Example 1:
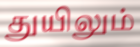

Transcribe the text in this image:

துயிலும்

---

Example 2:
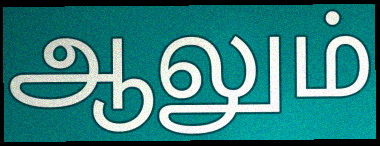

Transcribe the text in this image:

ஆலும்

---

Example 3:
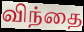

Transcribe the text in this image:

விந்தை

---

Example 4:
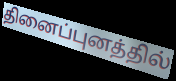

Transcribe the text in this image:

தினைப்புனத்தில்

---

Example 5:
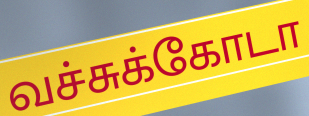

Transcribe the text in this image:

வச்சுக்கோடா